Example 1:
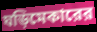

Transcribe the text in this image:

ঘড়িমেকারের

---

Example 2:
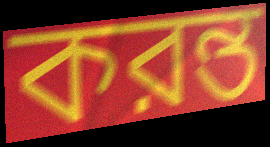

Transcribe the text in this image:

করন্ত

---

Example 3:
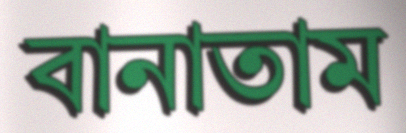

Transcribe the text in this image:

বানাতাম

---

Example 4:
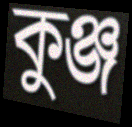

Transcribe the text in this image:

কুঞ্জ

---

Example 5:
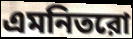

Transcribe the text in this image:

এমনিতরো